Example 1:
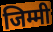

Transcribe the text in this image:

जिम्मी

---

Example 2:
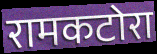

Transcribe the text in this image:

रामकटोरा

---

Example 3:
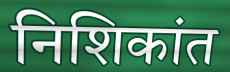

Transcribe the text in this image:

निशिकांत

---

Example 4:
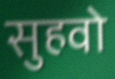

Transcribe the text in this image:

सुहवो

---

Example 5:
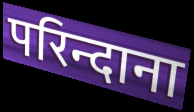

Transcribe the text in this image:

परिन्दाना